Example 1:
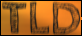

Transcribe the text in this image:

TLD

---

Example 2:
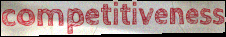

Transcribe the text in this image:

competitiveness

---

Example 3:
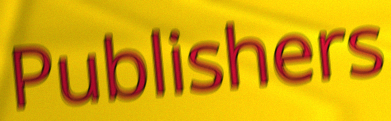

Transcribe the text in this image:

Publishers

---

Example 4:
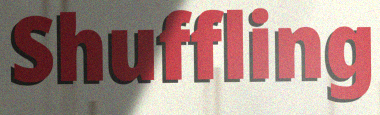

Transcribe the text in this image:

Shuffling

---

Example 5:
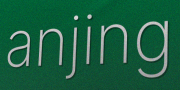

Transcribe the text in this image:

anjing